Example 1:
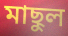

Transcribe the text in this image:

মাছুল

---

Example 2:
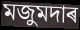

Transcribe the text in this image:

মজুমদাৰ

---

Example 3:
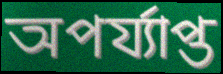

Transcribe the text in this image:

অপৰ্য্যাপ্ত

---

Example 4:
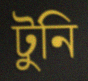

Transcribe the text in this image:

টুনি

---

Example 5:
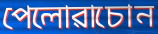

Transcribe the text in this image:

পেলোৱাচোন